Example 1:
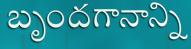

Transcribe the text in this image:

బృందగానాన్ని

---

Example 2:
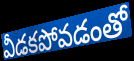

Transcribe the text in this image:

వీడకపోవడంతో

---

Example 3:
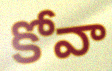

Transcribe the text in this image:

కోవా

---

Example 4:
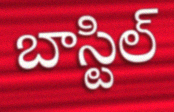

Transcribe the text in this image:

బాస్టిల్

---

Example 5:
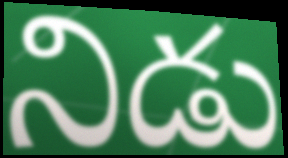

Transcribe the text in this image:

నిడు